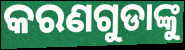
କରଣଗୁଡାଙ୍କୁ